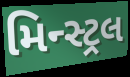
મિન્સ્ટ્રલ